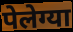
पेलेग्या